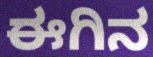
ಈಗಿನ